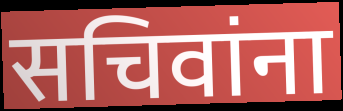
सचिवांना